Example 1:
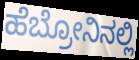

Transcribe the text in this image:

ಹೆಬ್ರೋನಿನಲ್ಲಿ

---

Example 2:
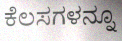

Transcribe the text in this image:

ಕೆಲಸಗಳನ್ನೂ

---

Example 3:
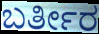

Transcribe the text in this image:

ಬರ್ತೀರ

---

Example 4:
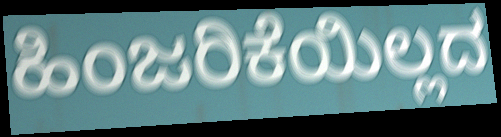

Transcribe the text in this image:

ಹಿಂಜರಿಕೆಯಿಲ್ಲದ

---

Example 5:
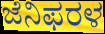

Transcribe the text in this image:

ಜೆನಿಫರಳ